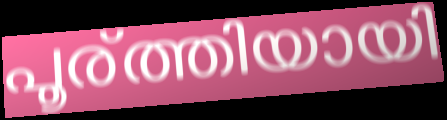
പൂര്ത്തിയായി